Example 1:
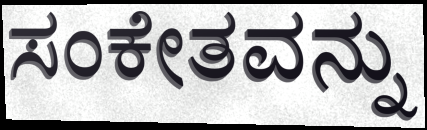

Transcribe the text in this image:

ಸಂಕೇತವನ್ನು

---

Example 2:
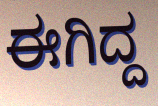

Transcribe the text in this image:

ಈಗಿದ್ದ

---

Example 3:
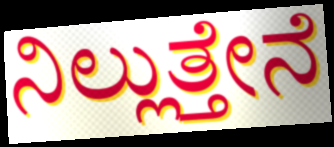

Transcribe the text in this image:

ನಿಲ್ಲುತ್ತೇನೆ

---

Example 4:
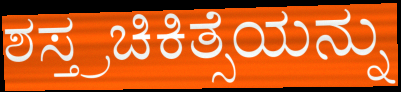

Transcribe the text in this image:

ಶಸ್ತ್ರಚಿಕಿತ್ಸೆಯನ್ನು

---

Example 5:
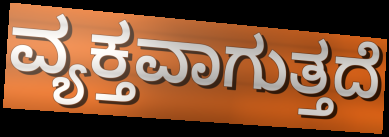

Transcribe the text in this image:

ವ್ಯಕ್ತವಾಗುತ್ತದೆ